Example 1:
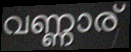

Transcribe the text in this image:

വണ്ണാര്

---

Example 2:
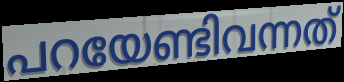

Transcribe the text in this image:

പറയേണ്ടിവന്നത്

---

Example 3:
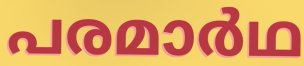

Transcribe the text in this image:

പരമാർഥ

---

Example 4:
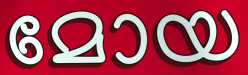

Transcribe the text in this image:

മോയ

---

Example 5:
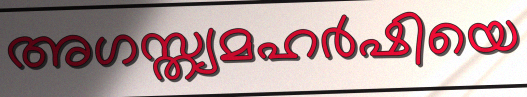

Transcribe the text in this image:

അഗസ്ത്യമഹർഷിയെ